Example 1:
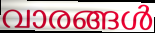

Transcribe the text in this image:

വാരങ്ങൾ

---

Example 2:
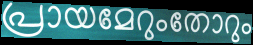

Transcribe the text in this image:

പ്രായമേറുംതോറും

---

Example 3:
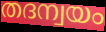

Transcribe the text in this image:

തദന്വയം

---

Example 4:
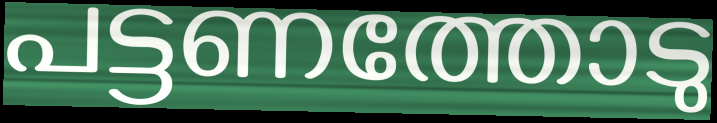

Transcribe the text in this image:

പട്ടണത്തോടു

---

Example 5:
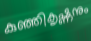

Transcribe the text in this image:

കുഞ്ഞികൃഷ്ണനും